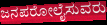
ಜನಪರೋಲೈಸುವರು